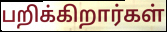
பறிக்கிறார்கள்